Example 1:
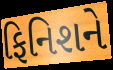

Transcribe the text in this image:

ફિનિશને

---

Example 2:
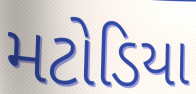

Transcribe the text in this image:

મટોડિયા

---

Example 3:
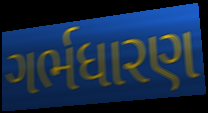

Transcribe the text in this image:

ગર્ભધારણ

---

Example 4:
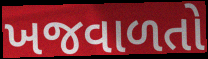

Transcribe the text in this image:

ખજવાળતો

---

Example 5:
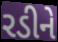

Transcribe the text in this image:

રડીને